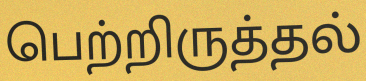
பெற்றிருத்தல்